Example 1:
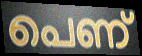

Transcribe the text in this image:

പെണ്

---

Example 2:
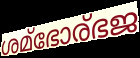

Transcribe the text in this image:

ശമ്ഭോര്ഭജ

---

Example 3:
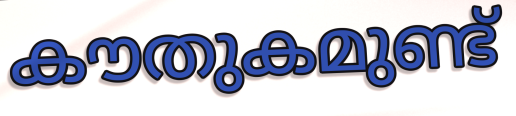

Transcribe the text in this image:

കൗതുകമുണ്ട്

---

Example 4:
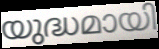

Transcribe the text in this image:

യുദ്ധമായി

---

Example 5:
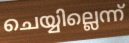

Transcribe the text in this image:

ചെയ്യില്ലെന്ന്